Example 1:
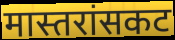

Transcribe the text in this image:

मास्तरांसकट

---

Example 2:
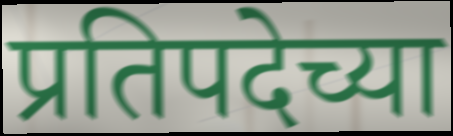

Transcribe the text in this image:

प्रतिपदेच्या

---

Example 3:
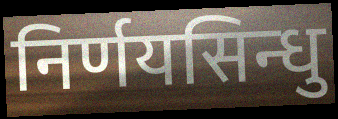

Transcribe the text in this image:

निर्णयसिन्धु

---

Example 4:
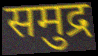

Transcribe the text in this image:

समुद्र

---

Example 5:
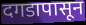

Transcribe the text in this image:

दगडापासून